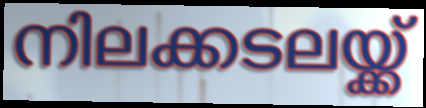
നിലക്കടലയ്ക്ക്